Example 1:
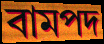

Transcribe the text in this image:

বামপদ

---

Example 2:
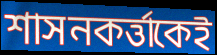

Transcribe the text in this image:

শাসনকর্ত্তাকেই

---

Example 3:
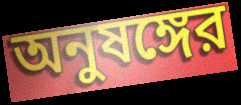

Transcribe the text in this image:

অনুষঙ্গের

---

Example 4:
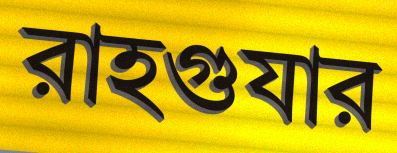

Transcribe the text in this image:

রাহগুযার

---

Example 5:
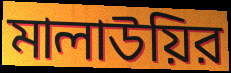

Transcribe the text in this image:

মালাউয়ির